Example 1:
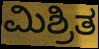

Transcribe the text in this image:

ಮಿಶ್ರಿತ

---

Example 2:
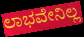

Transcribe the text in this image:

ಲಾಭವೇನಿಲ್ಲ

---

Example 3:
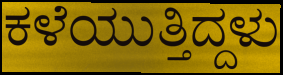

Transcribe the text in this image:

ಕಳೆಯುತ್ತಿದ್ದಳು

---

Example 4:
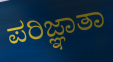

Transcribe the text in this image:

ಪರಿಜ್ಞಾತಾ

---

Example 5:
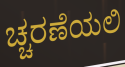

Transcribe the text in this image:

ಚ್ಚರಣೆಯಲಿ